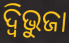
ଦ୍ବିଭୁଜା